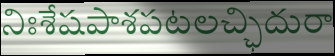
నిఃశేషపాశపటలచ్ఛిదురా